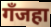
गँजहा